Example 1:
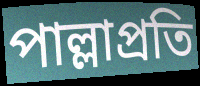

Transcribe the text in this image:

পাল্লাপ্রতি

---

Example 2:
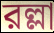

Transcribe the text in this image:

রল্লা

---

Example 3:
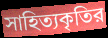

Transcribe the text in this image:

সাহিত্যকৃতির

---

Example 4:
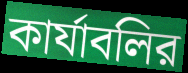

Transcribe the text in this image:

কার্যাবলির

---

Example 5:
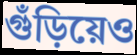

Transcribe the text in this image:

গুঁড়িয়েও